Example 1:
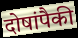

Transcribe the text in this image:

दोषांपैकी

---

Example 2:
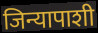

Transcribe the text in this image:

जिन्यापाशी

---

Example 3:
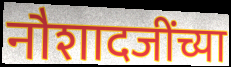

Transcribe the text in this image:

नौशादजींच्या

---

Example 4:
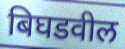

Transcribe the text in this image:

बिघडवील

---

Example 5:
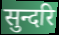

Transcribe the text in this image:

सुन्दरि